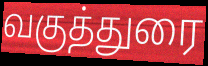
வகுத்துரை